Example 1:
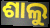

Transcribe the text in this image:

ଶାଲୁ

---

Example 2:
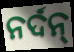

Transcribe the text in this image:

ନର୍ଦନ୍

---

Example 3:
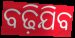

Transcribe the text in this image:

ବଢ଼ିଯିବ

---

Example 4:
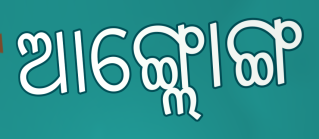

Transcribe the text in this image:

ଆଙ୍ଗ୍ଲୋଙ୍ଗ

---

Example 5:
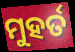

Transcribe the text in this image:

ମୁହର୍ତ